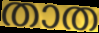
താത